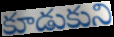
కూడుకుని